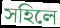
সহিলে